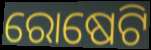
ରୋଷେଟି